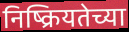
निष्क्रियतेच्या